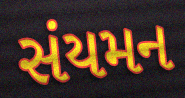
સંયમન